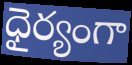
ధైర్యంగా